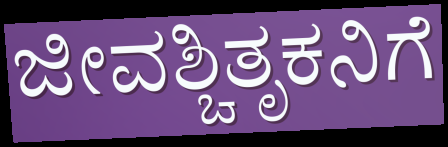
ಜೀವಶ್ಚಿತೃಕನಿಗೆ